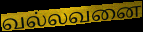
வல்லவனை